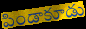
పిండాకూడు